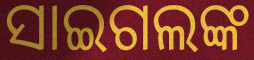
ସାଇଗଲଙ୍କ